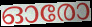
ഓരോ